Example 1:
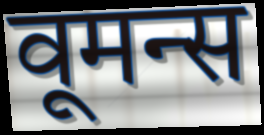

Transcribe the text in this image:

वूमन्स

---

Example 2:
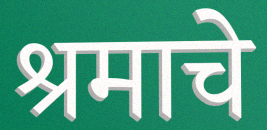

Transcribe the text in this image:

श्रमाचे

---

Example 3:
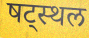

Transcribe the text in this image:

षट्स्थल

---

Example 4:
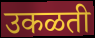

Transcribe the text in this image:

उकळती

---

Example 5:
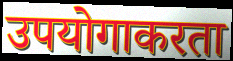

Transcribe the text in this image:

उपयोगाकरता